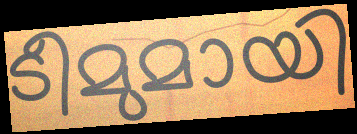
ടീമുമായി